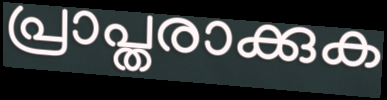
പ്രാപ്തരാക്കുക